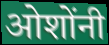
ओशोंनी